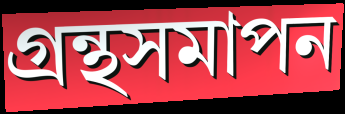
গ্রন্থসমাপন